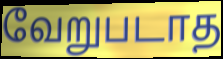
வேறுபடாத